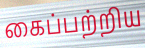
கைப்பற்றிய